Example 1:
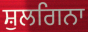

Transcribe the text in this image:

ਸ਼ੁਲਗਿਨਾ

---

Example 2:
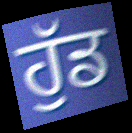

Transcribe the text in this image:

ਹੁੱਡ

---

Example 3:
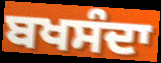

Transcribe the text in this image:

ਬਖਸੰਦਾ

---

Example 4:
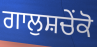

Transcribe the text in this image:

ਗਾਲੁਸ਼ਚੇਂਕੋ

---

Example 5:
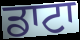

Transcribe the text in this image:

ਡਾਟਾ